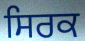
ਸਿਰਕ